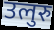
उलुरु